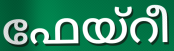
ഫേയ്റീ